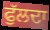
ਫੁੱਲਦਾ